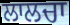
ਲਾਲਚਾ